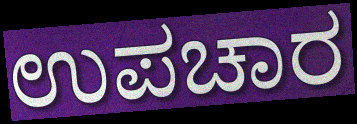
ಉಪಚಾರ